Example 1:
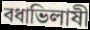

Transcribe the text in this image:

বধাভিলাষী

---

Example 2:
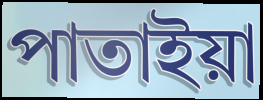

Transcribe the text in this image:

পাতাইয়া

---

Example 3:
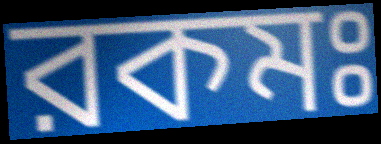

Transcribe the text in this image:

রকমঃ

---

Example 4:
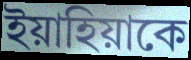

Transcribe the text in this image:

ইয়াহিয়াকে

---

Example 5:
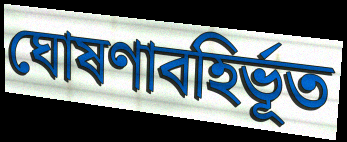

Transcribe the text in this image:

ঘোষণাবহির্ভূত